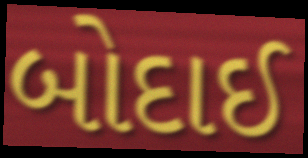
બોદાઈ